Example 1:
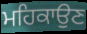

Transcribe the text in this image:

ਮਹਿਕਾਉਣ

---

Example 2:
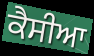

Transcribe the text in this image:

ਕੈਸੀਆ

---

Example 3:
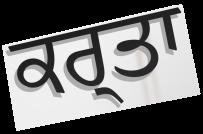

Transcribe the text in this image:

ਕਰ੍ਤਾ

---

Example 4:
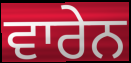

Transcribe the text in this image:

ਵਾਰੇਨ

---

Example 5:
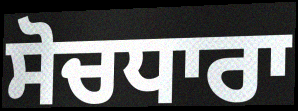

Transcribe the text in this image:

ਸੋਚਧਾਰਾ